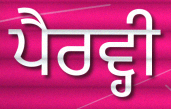
ਪੈਰਵ੍ਹੀ